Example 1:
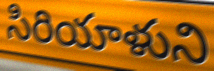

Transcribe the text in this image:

సిరియాళుని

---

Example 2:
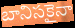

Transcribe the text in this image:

బానిసకైనా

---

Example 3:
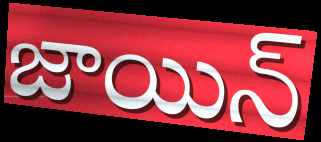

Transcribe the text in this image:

జాయిన్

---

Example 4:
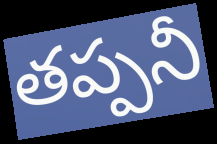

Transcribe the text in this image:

తప్పనీ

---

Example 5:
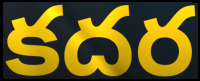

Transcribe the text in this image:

కదర